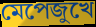
মেপেজুখে